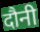
दौनी